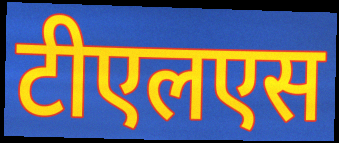
टीएलएस